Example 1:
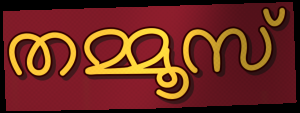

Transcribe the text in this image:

തമ്മൂസ്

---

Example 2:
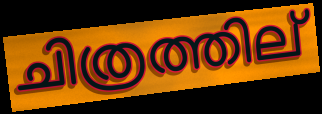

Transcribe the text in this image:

ചിത്രത്തില്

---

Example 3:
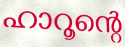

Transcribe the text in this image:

ഹാറൂന്റെ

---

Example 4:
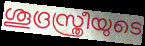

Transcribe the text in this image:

ശൂദ്രസ്ത്രീയുടെ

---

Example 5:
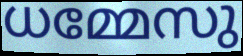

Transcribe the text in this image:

ധമ്മേസു